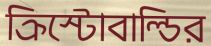
ক্রিস্টোবাল্ডির